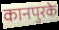
कानपुरके